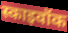
स्काइवॉक